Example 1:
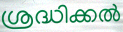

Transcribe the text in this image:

ശ്രദ്ധിക്കൽ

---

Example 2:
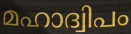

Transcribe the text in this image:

മഹാദ്വിപം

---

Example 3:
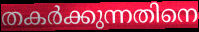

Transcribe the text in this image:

തകർക്കുന്നതിനെ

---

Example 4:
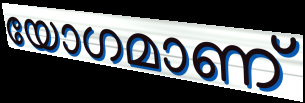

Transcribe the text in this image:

യോഗമാണ്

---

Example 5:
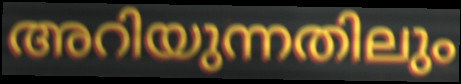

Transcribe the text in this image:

അറിയുന്നതിലും